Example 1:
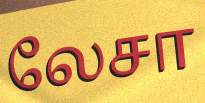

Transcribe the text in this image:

லேசா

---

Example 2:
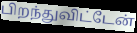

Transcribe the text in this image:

பிறந்துவிட்டேன்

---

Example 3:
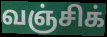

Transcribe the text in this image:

வஞ்சிக்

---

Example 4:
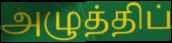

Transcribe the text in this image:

அழுத்திப்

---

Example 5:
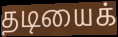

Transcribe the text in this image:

தடியைக்